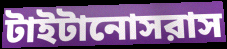
টাইটানোসরাস